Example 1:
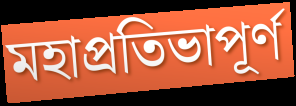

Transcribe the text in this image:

মহাপ্রতিভাপূর্ণ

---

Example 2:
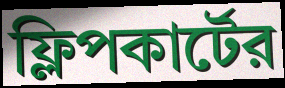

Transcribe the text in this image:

ফ্লিপকার্টের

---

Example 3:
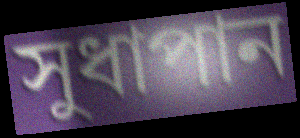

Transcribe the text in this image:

সুধাপান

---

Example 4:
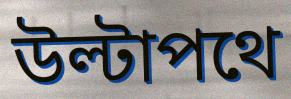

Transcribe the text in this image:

উল্টাপথে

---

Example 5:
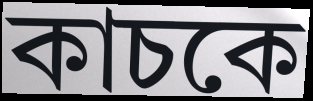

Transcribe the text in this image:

কাচকে